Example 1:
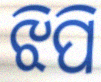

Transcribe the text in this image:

ଝିପି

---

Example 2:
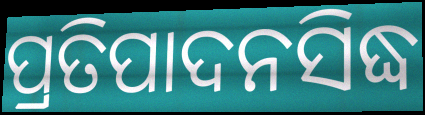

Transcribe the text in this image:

ପ୍ରତିପାଦନସିଦ୍ଧ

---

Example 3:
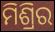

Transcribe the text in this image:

ମିଶ୍ରିର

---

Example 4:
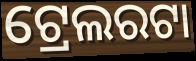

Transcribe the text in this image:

ଟ୍ରେଲରଟା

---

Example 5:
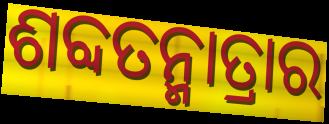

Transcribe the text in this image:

ଶବ୍ଦତନ୍ମାତ୍ରାର